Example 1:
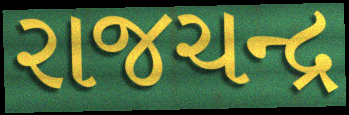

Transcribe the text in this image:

રાજચન્દ્ર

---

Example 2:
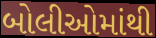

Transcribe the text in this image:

બોલીઓમાંથી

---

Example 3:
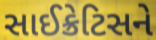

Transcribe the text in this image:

સાઈક્રેટિસને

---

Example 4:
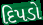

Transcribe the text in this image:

દિપડો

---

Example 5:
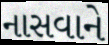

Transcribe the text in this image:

નાસવાને